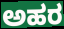
ಅಹರ